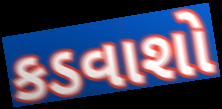
કડવાશો